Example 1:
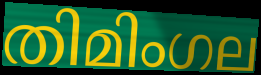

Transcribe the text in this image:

തിമിംഗല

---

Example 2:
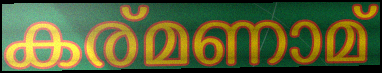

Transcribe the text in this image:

കര്മണാമ്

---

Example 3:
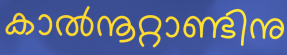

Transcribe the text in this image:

കാൽനൂറ്റാണ്ടിനു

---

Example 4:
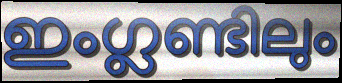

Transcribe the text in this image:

ഇംഗ്ലണ്ടിലും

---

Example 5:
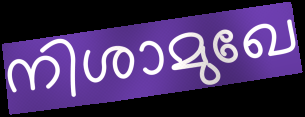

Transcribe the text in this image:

നിശാമുഖേ